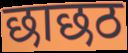
छाछठ